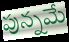
పున్నమే